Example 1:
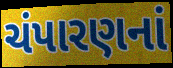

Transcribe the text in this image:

ચંપારણનાં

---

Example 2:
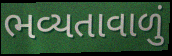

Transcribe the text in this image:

ભવ્યતાવાળું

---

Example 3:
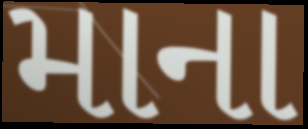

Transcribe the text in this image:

માના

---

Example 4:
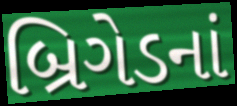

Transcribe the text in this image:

બ્રિગેડનાં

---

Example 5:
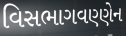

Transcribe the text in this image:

વિસભાગવણ્ણેન